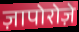
ज़ापोरोज़े